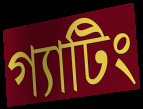
গ্যাটিং